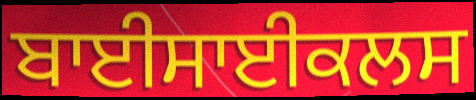
ਬਾਈਸਾਈਕਲਸ